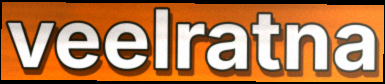
veelratna